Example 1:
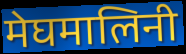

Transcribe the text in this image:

मेघमालिनी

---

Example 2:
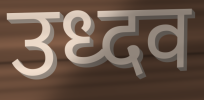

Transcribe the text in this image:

उध्दव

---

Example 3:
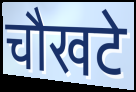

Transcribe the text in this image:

चौखटे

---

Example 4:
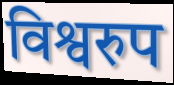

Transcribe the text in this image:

विश्वरुप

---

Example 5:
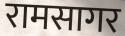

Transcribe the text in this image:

रामसागर